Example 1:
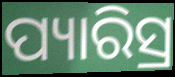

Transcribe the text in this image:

ପ୍ୟାରିସ୍ର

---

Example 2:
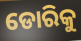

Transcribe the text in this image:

ଡୋରିକୁ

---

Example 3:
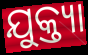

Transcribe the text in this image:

ଯୁକ୍ତ୍ୟା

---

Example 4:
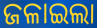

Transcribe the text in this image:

ଜଳାଇଲା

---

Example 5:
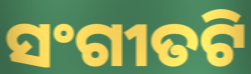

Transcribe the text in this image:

ସଂଗୀତଟି